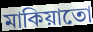
মাকিয়াতো